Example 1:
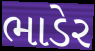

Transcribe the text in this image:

ભાડેર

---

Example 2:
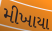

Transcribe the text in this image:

મીખાયા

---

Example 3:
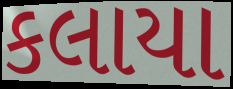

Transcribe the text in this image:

કલાયા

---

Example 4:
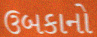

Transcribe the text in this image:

ઉબકાનો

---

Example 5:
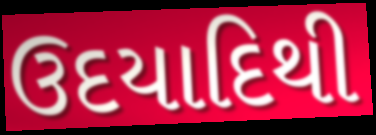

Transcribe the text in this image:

ઉદયાદિથી